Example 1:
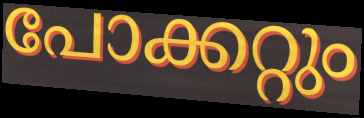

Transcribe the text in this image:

പോക്കറ്റും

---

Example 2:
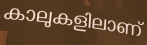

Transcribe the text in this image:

കാലുകളിലാണ്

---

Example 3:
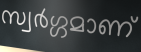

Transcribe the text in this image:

സ്വർഗ്ഗമാണ്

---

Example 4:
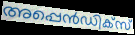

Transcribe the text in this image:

അപ്പെൻഡിക്സ്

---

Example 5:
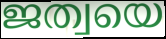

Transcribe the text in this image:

ജത്വയെ